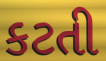
કટતી